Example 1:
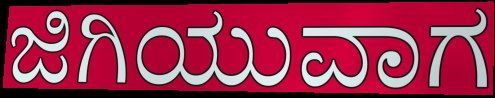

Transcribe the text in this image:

ಜಿಗಿಯುವಾಗ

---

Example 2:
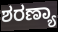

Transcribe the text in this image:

ಶರಣ್ಯಾ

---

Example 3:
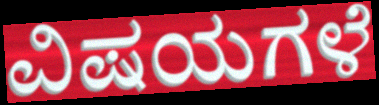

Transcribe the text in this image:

ವಿಷಯಗಳೆ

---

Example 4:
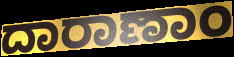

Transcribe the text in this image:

ದಾರಾಣಾಂ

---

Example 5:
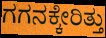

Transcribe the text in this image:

ಗಗನಕ್ಕೇರಿತ್ತು